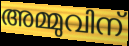
അമ്മുവിന്